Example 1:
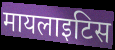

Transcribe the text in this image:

मायलाइटिस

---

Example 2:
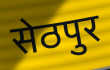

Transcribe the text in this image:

सेठपुर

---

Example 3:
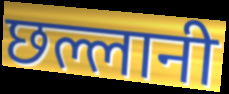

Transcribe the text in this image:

छल्लानी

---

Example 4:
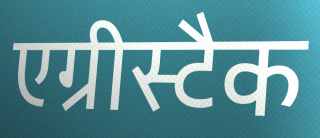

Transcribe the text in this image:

एग्रीस्टैक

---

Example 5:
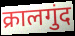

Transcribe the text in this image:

क्रालगुंद